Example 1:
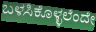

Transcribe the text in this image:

ಬಳಸಿಕೊಳ್ಳಲೆಂದೇ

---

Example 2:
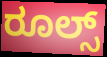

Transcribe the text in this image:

ರೂಲ್ಸ್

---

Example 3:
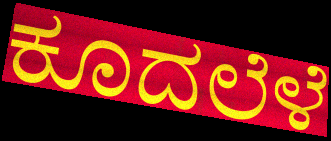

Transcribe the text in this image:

ಕೂದಲೆಳೆ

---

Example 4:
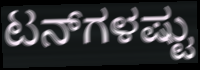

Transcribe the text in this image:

ಟನ್‌ಗಳಷ್ಟು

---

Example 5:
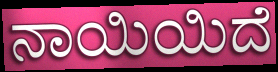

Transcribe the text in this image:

ನಾಯಿಯಿದೆ